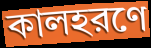
কালহরণে